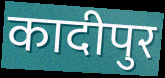
कादीपुर